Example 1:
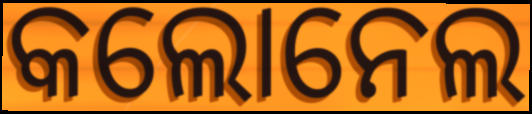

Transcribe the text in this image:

କଲୋନେଲ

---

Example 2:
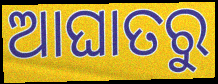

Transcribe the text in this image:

ଆଘାତରୁ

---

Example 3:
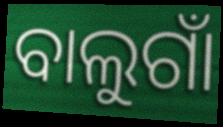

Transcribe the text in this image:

ବାଲୁଗାଁ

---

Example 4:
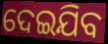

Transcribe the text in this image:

ଦେଇଯିବ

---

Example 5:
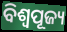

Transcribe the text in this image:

ବିଶ୍ୱପୂଜ୍ୟ